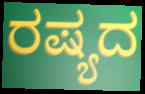
ರಷ್ಯದ